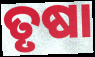
ତୃଷା